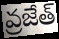
వ్రజేత్